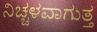
ನಿಚ್ಚಳವಾಗುತ್ತ